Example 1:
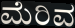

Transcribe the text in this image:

ಮೆರಿವ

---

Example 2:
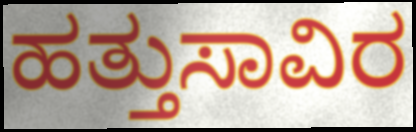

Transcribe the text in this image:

ಹತ್ತುಸಾವಿರ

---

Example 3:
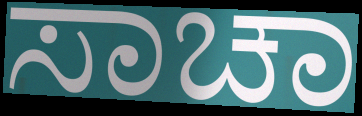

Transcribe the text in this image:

ಸಾಚಾ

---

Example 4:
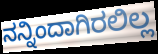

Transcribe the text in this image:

ನನ್ನಿಂದಾಗಿರಲಿಲ್ಲ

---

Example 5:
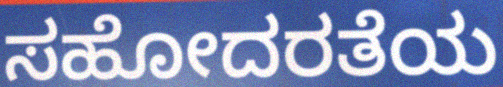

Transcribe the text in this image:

ಸಹೋದರತೆಯ